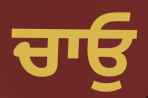
ਚਾਓੁ